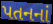
પતનનાં